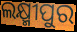
ଲକ୍ଷ୍ମୀପୁର